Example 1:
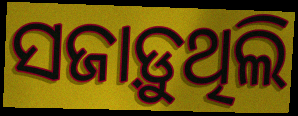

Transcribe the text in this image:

ସଜାଡ଼ୁଥିଲି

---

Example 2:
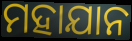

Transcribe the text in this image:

ମହାଯାନ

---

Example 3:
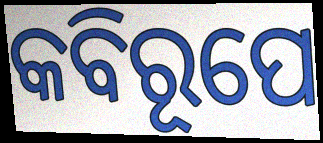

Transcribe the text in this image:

କବିରୂପେ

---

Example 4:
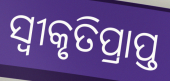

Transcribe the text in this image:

ସ୍ବୀକୃତିପ୍ରାପ୍ତ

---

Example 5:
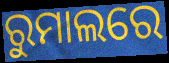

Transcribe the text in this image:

ରୁମାଲରେ